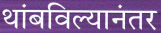
थांबविल्यानंतर